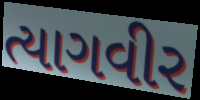
ત્યાગવીર